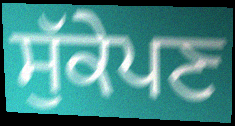
ਸੁੱਕੇਪਣ